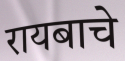
रायबाचे